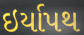
ઇર્યાપથ